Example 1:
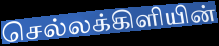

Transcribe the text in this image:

செல்லக்கிளியின்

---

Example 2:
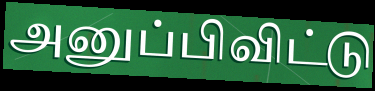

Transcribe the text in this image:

அனுப்பிவிட்டு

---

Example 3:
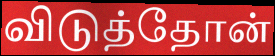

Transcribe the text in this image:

விடுத்தோன்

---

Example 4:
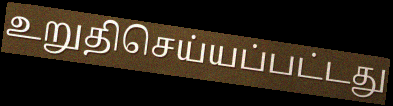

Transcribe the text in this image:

உறுதிசெய்யப்பட்டது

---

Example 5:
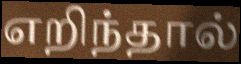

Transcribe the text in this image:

எறிந்தால்